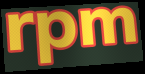
rpm